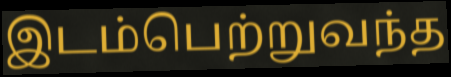
இடம்பெற்றுவந்த